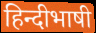
हिन्दीभाषी